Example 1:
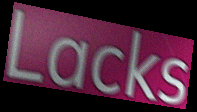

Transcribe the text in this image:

Lacks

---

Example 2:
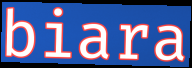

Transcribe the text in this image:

biara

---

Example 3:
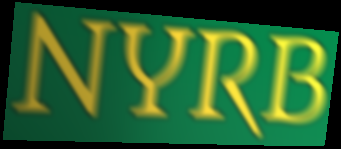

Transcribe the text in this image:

NYRB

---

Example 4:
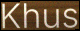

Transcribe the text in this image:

Khus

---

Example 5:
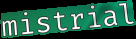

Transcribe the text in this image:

mistrial